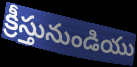
క్రీస్తునుండియు